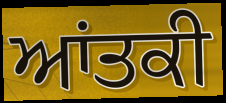
ਆਂਤਕੀ